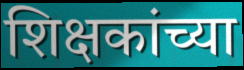
शिक्षकांच्‍या